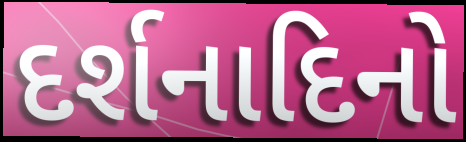
દર્શનાદિનો